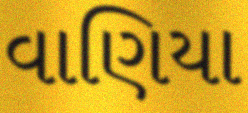
વાણિયા